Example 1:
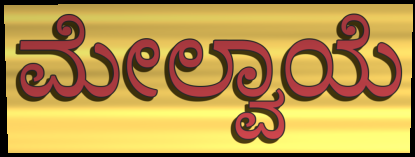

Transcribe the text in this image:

ಮೇಲ್ವಾಯೆ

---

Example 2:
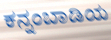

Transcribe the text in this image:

ಕನ್ನಂಬಾಡಿಯ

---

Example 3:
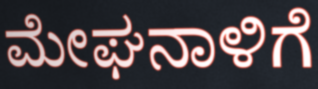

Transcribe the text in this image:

ಮೇಘನಾಳಿಗೆ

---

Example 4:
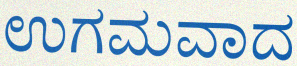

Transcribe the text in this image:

ಉಗಮವಾದ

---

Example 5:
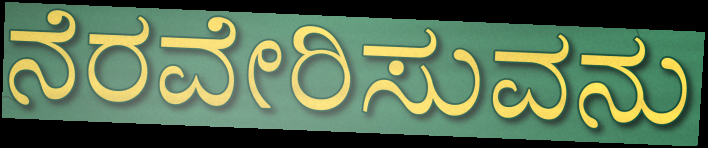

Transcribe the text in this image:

ನೆರವೇರಿಸುವನು